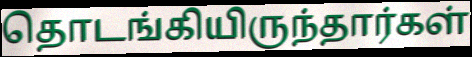
தொடங்கியிருந்தார்கள்